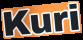
Kuri